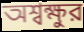
অশ্বক্ষুর